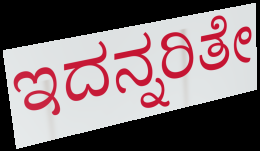
ಇದನ್ನರಿತೇ